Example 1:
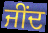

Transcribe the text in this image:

ਜੀਂਦ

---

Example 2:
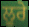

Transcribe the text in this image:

ਲੂਰੇ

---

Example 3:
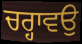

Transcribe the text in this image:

ਚਰ੍ਹਾਵਉ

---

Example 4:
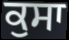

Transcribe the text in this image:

ਕੁਸਾ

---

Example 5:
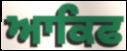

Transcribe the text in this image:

ਆਕਿਫ